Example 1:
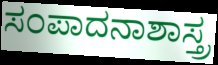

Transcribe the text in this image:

ಸಂಪಾದನಾಶಾಸ್ತ್ರ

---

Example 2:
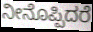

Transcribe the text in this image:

ನೀನೊಪ್ಪಿದರೆ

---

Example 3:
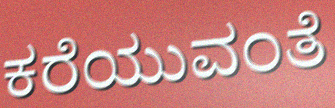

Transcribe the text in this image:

ಕರೆಯುವಂತೆ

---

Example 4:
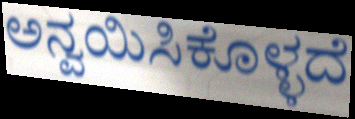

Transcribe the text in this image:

ಅನ್ವಯಿಸಿಕೊಳ್ಳದೆ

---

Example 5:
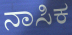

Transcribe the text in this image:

ನಾಸಿಕ